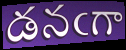
డనఁగా